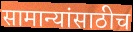
सामान्यांसाठीच